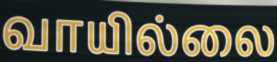
வாயில்லை